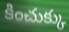
కించుక్కు